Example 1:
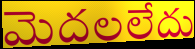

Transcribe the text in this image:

మెదలలేదు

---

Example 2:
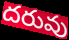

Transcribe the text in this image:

దరువు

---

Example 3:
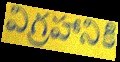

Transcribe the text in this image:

విగ్రహానికి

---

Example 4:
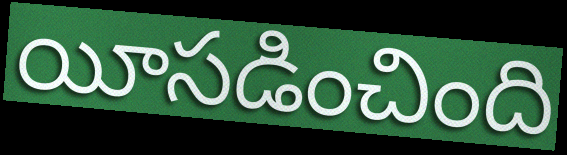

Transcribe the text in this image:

యీసడించింది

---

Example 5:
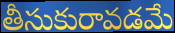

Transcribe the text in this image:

తీసుకురావడమే